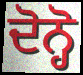
ਦੋਨ੍ਹੋ